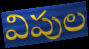
విపుల